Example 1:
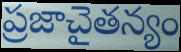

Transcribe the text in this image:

ప్రజాచైతన్యం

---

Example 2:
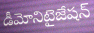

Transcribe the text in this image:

డీమోనిటైజేషన్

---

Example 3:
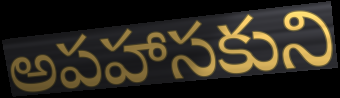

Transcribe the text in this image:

అపహాసకుని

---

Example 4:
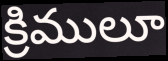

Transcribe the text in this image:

క్రిములూ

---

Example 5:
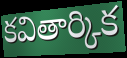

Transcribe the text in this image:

కవితార్కిక